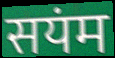
सयंम